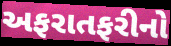
અફરાતફરીનો